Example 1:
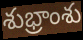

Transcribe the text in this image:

శుభ్రాంశు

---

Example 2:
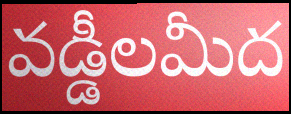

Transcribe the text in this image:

వడ్డీలమీద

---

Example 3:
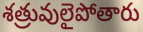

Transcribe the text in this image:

శత్రువులైపోతారు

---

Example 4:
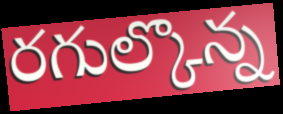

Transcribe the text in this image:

రగుల్కొన్న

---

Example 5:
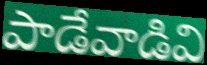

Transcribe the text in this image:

పాడేవాడివి